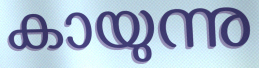
കായുന്നു